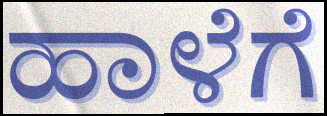
ಹಾಳೆಗೆ